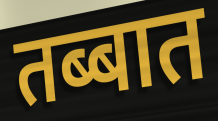
तब्बात